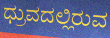
ಧ್ರುವದಲ್ಲಿರುವ